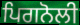
ਪਿਗਨੋਲੀ